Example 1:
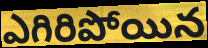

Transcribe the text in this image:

ఎగిరిపోయిన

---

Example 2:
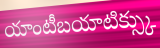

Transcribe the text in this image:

యాంటీబయాటిక్స్కు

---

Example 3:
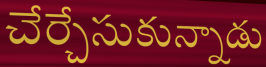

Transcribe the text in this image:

చేర్చేసుకున్నాడు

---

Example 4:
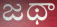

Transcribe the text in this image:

జథా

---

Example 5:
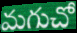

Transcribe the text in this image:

మగుచో